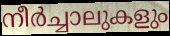
നീർച്ചാലുകളും